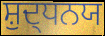
ਸ਼ੁਦ੍ਧਨਯ